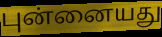
புன்னையது